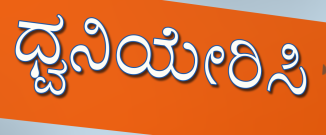
ಧ್ವನಿಯೇರಿಸಿ